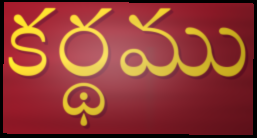
కర్థము